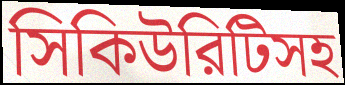
সিকিউরিটিসহ